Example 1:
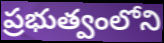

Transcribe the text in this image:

ప్రభుత్వంలోని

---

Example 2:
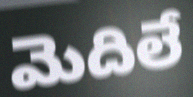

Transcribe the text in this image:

మెదిలే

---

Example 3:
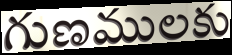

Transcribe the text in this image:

గుణములకు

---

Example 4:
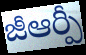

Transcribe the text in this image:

జీఆర్పీ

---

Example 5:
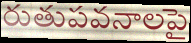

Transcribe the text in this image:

రుతుపవనాలపై